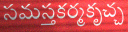
సమస్తకర్మకృచ్చ